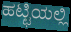
ಹಟ್ಟಿಯಲ್ಲಿ